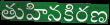
తుహినకిరణ